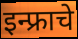
इन्फ्राचे